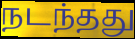
நடந்தது